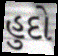
હુદો